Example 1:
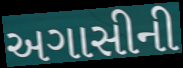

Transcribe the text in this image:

અગાસીની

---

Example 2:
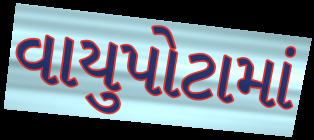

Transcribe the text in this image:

વાયુપોટામાં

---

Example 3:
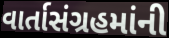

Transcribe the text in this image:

વાર્તાસંગ્રહમાંની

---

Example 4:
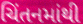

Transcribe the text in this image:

ચિંતનમાંથી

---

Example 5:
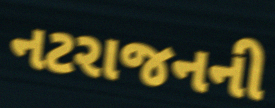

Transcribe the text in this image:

નટરાજનની